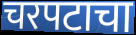
चरपटाचा